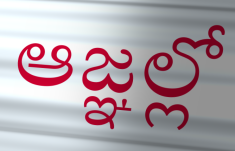
ఆజ్ఞల్లో